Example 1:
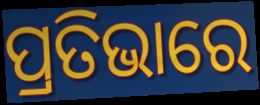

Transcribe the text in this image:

ପ୍ରତିଭାରେ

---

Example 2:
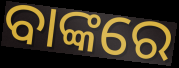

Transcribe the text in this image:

ବାଙ୍କରେ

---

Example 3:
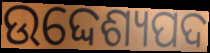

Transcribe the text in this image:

ଉଦ୍ଦେଶ୍ୟପଦ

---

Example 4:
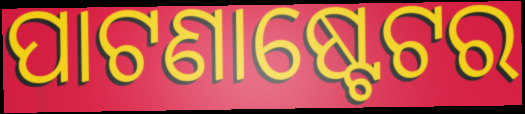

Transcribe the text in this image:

ପାଟଣାଷ୍ଟେଟର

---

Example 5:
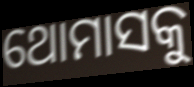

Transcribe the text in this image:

ଥୋମାସକୁ